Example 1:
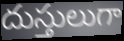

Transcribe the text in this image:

దుస్తులుగా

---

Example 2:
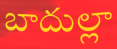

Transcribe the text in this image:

బాదుల్లా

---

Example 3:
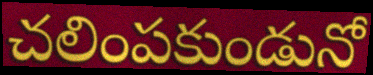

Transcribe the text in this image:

చలింపకుండునో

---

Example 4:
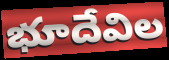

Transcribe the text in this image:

భూదేవిల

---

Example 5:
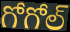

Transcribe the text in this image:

గోగోల్